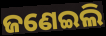
ଜଣେଇଲି